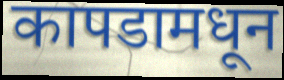
कापडामधून